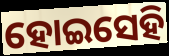
ହୋଇସେହି